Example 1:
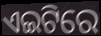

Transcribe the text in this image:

ଏଇଟିରେ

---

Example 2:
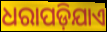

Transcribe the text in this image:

ଧରାପଡ଼ିଯାଏ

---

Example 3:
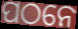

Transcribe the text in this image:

ପଠନେ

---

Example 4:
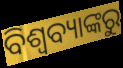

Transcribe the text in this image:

ବିଶ୍ୱବ୍ୟାଙ୍କରୁ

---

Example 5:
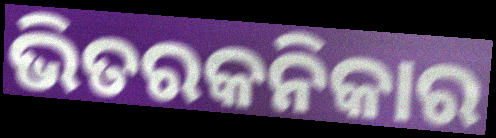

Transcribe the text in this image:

ଭିତରକନିକାର